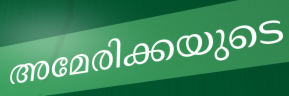
അമേരിക്കയുടെ